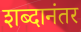
शब्दानंतर